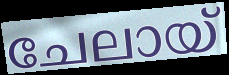
ചേലായ്